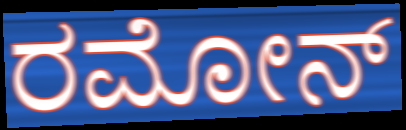
ರಮೋನ್